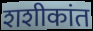
शशीकांत